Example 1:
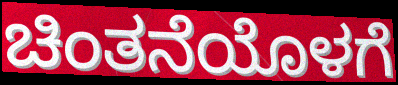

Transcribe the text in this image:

ಚಿಂತನೆಯೊಳಗೆ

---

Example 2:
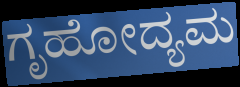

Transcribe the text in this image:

ಗೃಹೋದ್ಯಮ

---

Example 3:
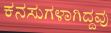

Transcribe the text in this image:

ಕನಸುಗಳಾಗಿದ್ದವು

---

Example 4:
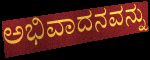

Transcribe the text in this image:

ಅಭಿವಾದನವನ್ನು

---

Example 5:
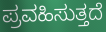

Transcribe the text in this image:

ಪ್ರವಹಿಸುತ್ತದೆ